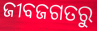
ଜୀବଜଗତରୁ